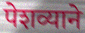
पेशव्याने